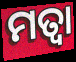
ମତ୍ୱା